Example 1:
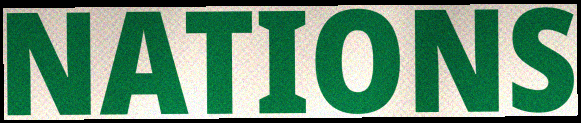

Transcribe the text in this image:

NATIONS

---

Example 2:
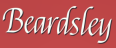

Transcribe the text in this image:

Beardsley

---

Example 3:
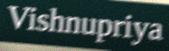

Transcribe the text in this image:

Vishnupriya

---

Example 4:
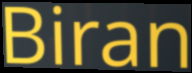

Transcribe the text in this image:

Biran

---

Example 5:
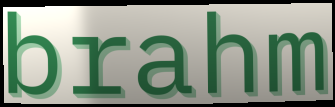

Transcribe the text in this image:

brahm